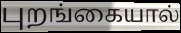
புறங்கையால்